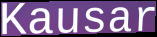
Kausar